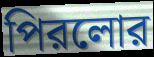
পিরলোর